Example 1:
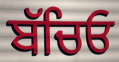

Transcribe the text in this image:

ਬੱਚਿਓ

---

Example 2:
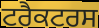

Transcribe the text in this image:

ਟਰੈਕਟਰਸ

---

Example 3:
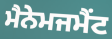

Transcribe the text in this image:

ਮੈਨੇਮਜਮੈਂਟ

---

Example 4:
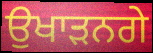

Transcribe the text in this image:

ਉਖਾੜਨਗੇ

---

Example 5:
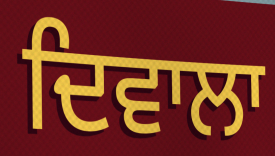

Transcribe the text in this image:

ਦਿਵਾਲਾ